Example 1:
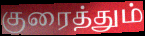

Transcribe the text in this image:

குரைத்தும்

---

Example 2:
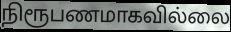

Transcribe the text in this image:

நிரூபணமாகவில்லை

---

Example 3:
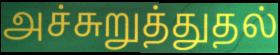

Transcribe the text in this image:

அச்சுறுத்துதல்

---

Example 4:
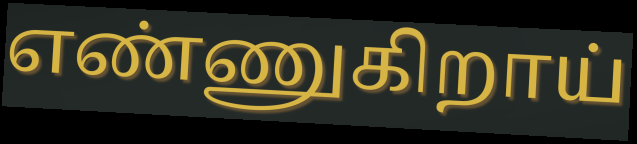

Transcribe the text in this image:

எண்ணுகிறாய்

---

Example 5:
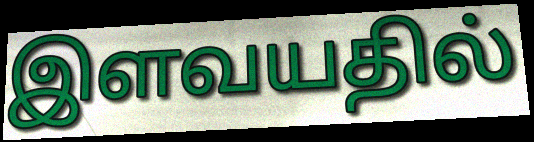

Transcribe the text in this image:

இளவயதில்